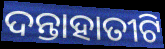
ଦନ୍ତାହାତୀଟି